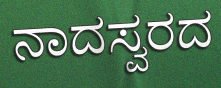
ನಾದಸ್ವರದ